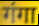
गंगा